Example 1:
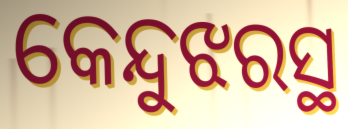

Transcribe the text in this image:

କେନ୍ଦୁଝରସ୍ଥ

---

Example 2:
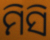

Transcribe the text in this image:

ମିସି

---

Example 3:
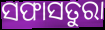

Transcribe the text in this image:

ସଫାସତୁରା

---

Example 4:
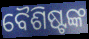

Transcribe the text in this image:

ବୈଶିଷ୍ଟଙ୍କ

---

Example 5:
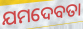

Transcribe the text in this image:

ଯମଦେବତା